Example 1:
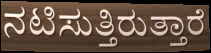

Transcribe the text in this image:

ನಟಿಸುತ್ತಿರುತ್ತಾರೆ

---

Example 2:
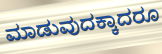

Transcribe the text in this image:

ಮಾಡುವುದಕ್ಕಾದರೂ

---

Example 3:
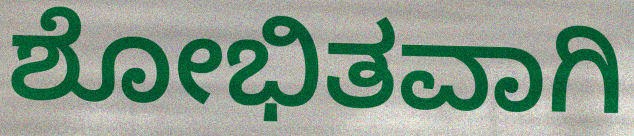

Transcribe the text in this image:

ಶೋಭಿತವಾಗಿ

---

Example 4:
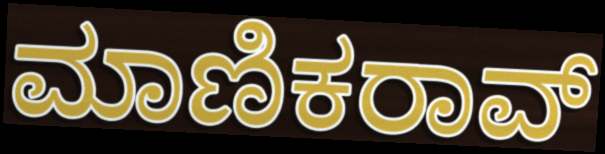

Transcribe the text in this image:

ಮಾಣಿಕರಾವ್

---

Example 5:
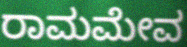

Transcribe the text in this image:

ರಾಮಮೇವ